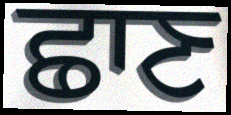
ਛਾਣ